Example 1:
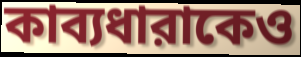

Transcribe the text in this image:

কাব্যধারাকেও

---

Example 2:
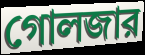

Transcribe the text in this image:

গোলজার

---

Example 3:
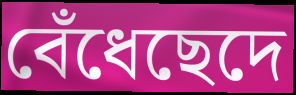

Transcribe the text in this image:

বেঁধেছেদে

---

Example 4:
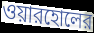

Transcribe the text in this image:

ওয়ারহোলের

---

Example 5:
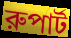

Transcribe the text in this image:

রুপার্ট